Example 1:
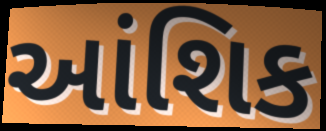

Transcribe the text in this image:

આંશિક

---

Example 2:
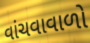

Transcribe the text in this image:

વાંચવાવાળો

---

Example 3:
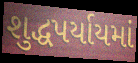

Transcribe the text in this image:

શુદ્ધપર્યાયમાં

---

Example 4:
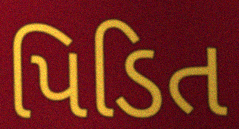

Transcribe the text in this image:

પિડિત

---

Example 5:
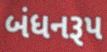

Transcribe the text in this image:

બંધનરૂપ